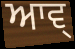
ਆਵ੍